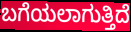
ಬಗೆಯಲಾಗುತ್ತಿದೆ